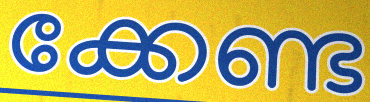
ക്കേണ്ട